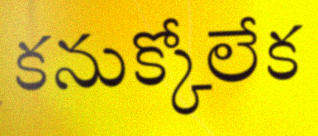
కనుక్కోలేక